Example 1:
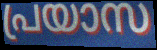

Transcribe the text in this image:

പ്രയാസ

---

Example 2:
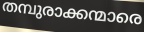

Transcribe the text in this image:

തമ്പുരാക്കന്മാരെ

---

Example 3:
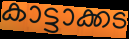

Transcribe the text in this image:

കാട്ടാക്കട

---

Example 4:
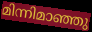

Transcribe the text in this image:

മിന്നിമാഞ്ഞു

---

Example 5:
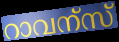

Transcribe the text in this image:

റാവന്സ്